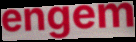
engem